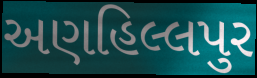
અણહિલ્લપુર